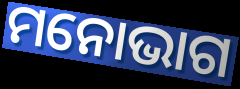
ମନୋଭାଗ